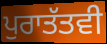
ਪੁਰਾਤੱਤਵੀ